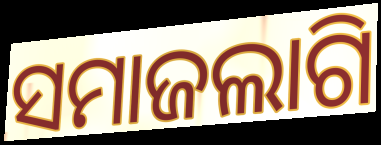
ସମାଜଲାଗି